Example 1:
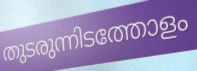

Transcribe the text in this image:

തുടരുന്നിടത്തോളം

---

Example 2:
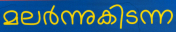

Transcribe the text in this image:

മലർന്നുകിടന്ന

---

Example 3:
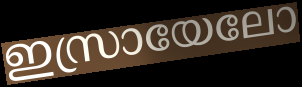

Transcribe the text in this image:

ഇസ്രായേലോ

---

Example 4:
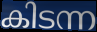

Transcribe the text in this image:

കിടന്ന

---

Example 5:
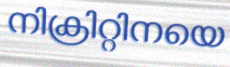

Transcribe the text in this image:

നിക്രിറ്റിനയെ